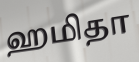
ஹமிதா